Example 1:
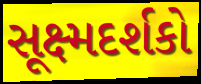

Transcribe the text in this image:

સૂક્ષ્મદર્શકો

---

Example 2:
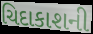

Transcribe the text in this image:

ચિદાકાશની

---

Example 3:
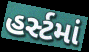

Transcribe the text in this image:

હર્સ્ટમાં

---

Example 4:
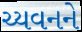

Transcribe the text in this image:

ચ્યવનને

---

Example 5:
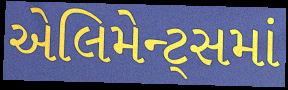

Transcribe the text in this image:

એલિમેન્ટ્સમાં